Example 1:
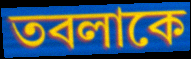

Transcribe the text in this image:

তবলাকে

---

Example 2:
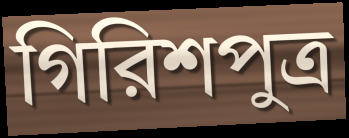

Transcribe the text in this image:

গিরিশপুত্র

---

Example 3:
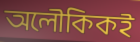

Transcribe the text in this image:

অলৌকিকই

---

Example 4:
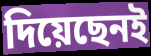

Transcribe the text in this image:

দিয়েছেনই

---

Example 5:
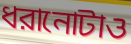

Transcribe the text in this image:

ধরানোটাও